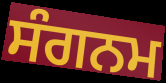
ਸੰਗਨਮ